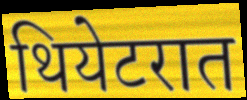
थियेटरात